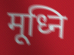
मूध्नि